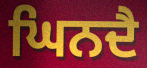
ਘਿਨਦੈ